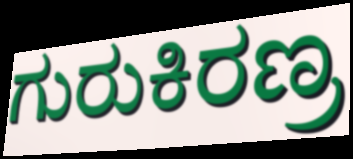
ಗುರುಕಿರಣ್ರ